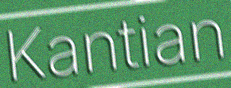
Kantian